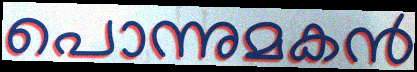
പൊന്നുമകൻ